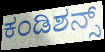
ಕಂಡಿಶನ್ಸ್